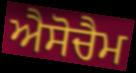
ਐਸੋਚੈਮ